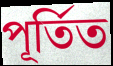
পূৰ্তিত